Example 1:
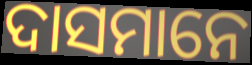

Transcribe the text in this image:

ଦାସମାନେ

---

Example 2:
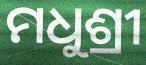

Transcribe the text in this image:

ମଧୁଶ୍ରୀ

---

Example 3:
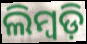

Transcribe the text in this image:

ଲିମ୍ବଡ଼ି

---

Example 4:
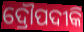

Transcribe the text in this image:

ଦ୍ରୌପଦୀକି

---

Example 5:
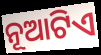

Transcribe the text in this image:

ନୂଆଟିଏ